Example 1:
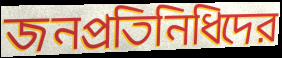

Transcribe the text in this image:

জনপ্রতিনিধিদের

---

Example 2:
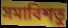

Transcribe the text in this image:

সমাবিশতু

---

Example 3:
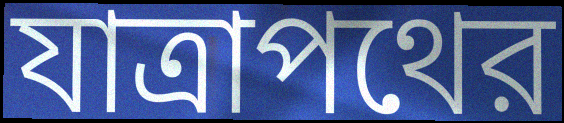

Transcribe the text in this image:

যাত্রাপথের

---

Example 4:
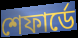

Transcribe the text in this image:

শেফার্ডে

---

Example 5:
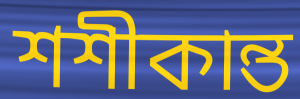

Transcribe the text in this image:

শশীকান্ত